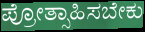
ಪ್ರೋತ್ಸಾಹಿಸಬೇಕು